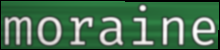
moraine